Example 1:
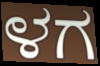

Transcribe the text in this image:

ಳಗ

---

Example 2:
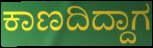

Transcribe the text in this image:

ಕಾಣದಿದ್ದಾಗ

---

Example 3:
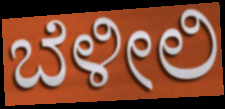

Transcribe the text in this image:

ಬೆಳೀಲಿ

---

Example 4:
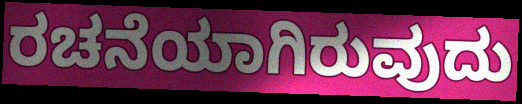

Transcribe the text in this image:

ರಚನೆಯಾಗಿರುವುದು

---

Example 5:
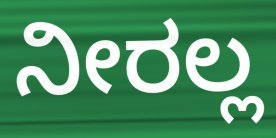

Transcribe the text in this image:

ನೀರಲ್ಲ